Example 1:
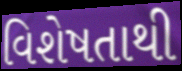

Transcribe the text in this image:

વિશેષતાથી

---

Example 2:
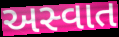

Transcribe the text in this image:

અસ્વાત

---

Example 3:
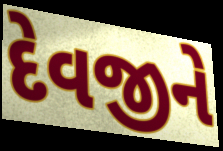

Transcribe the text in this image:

દેવજીને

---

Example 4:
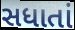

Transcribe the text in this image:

સધાતાં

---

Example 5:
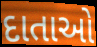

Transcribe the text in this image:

દાતાઓ